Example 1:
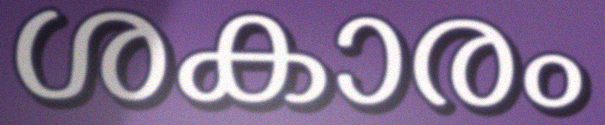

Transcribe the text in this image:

ശകാരം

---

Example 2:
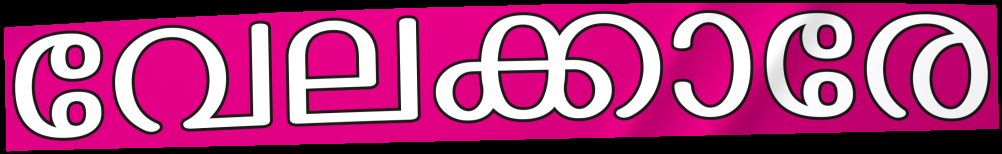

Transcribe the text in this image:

വേലക്കാരേ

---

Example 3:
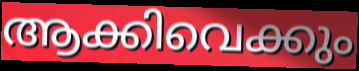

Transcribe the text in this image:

ആക്കിവെക്കും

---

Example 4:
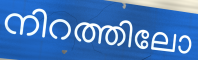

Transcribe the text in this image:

നിറത്തിലോ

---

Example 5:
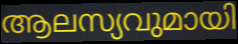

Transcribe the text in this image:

ആലസ്യവുമായി